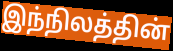
இந்நிலத்தின்